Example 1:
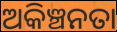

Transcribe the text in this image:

ଅକିଞ୍ଚନତା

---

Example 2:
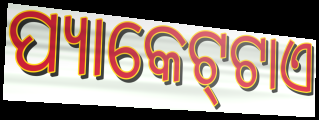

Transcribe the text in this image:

ପ୍ୟାକେଟ୍‌ଟାଏ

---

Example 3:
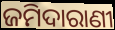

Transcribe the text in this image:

ଜମିଦାରାଣୀ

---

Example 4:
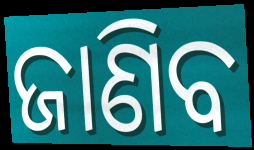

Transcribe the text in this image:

ଜାଣିବ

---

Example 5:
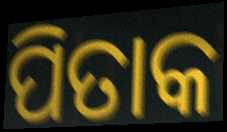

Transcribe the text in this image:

ପିତାକ